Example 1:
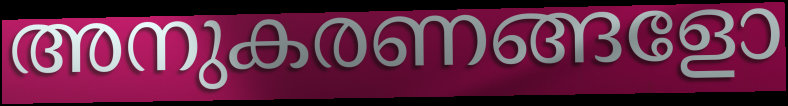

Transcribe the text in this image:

അനുകരണങ്ങളോ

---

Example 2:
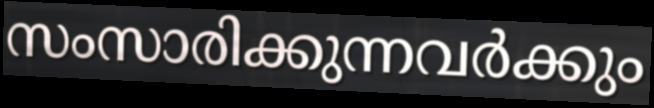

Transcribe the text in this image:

സംസാരിക്കുന്നവർക്കും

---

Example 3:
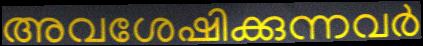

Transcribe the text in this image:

അവശേഷിക്കുന്നവർ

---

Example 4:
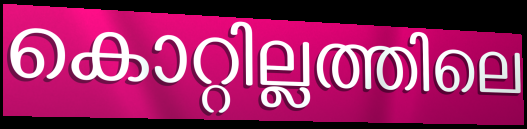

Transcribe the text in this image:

കൊറ്റില്ലത്തിലെ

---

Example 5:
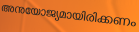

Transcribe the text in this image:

അനുയോജ്യമായിരിക്കണം